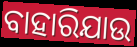
ବାହାରିଯାଉ